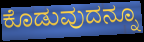
ಕೊಡುವುದನ್ನೂ